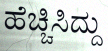
ಹೆಚ್ಚಿಸಿದ್ದು